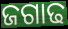
ଜଗାଢ